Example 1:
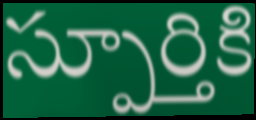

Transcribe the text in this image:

స్పూర్తికి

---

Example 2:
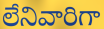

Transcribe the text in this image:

లేనివారిగా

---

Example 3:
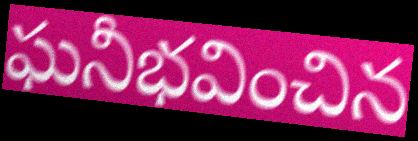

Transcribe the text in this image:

ఘనీభవించిన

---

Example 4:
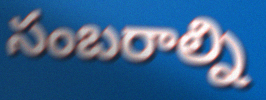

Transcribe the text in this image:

సంబరాల్ని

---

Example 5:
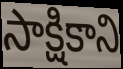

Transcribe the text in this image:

సాక్షికాని